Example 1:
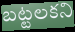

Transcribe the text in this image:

బట్టలకని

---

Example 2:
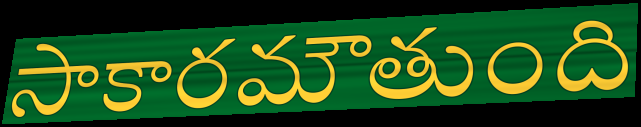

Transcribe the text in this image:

సాకారమౌతుంది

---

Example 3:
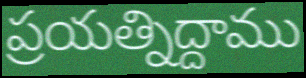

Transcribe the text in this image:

ప్రయత్నిద్దాము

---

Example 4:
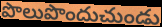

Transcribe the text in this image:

పొలుపొందుచుండు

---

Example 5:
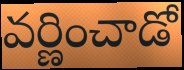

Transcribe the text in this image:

వర్ణించాడో